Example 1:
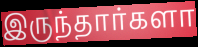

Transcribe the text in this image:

இருந்தார்களா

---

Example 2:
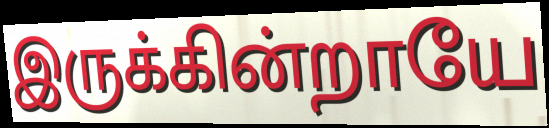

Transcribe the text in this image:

இருக்கின்றாயே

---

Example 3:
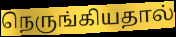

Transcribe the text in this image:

நெருங்கியதால்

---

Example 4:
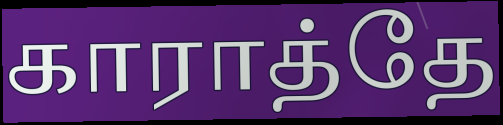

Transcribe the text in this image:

காராத்தே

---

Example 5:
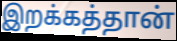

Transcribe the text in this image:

இறக்கத்தான்